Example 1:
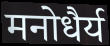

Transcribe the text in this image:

मनोधैर्य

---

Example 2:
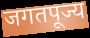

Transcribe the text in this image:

जगतपूज्य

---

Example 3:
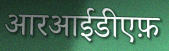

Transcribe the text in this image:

आरआईडीएफ़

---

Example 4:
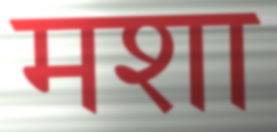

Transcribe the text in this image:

मशा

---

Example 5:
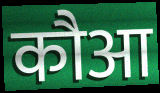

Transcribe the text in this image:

कौआ